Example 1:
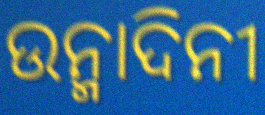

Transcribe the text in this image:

ଉନ୍ମାଦିନୀ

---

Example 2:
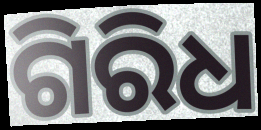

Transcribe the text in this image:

ଗିରିଧ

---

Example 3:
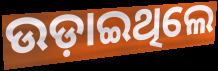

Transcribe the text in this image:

ଉଡ଼ାଇଥିଲେ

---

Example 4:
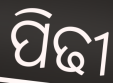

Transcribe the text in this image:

ପିଢୀ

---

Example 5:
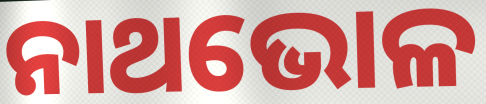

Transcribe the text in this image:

ନାଥଭୋଳ